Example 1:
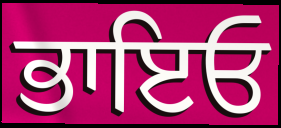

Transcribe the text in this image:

ਭਾਇਓ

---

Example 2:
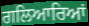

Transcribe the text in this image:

ਗਲਿਆਰਿਆਂ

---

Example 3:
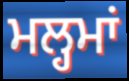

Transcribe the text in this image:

ਮਲ੍ਹਮਾਂ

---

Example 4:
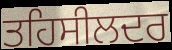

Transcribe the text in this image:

ਤਹਿਸੀਲਦਰ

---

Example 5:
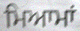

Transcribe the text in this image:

ਮਿਆਮਾਂ